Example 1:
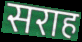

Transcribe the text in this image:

सराह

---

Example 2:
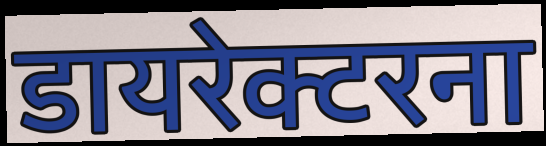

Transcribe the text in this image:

डायरेक्टरना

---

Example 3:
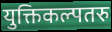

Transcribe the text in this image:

युक्तिकल्पतरु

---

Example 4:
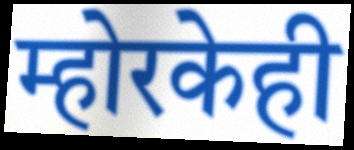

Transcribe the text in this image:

म्होरकेही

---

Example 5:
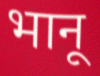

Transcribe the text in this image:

भानू